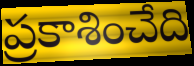
ప్రకాశించేది